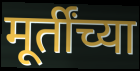
मूर्तींच्या